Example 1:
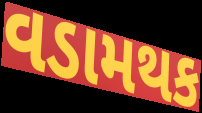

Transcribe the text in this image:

વડામથક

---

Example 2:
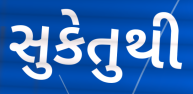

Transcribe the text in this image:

સુકેતુથી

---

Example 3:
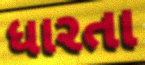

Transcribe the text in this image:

ધારતા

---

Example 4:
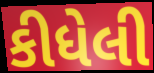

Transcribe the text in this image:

કીધેલી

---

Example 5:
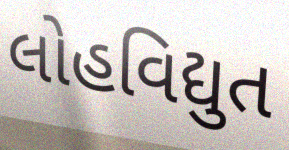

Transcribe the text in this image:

લોહવિદ્યુત